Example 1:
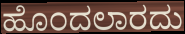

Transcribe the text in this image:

ಹೊಂದಲಾರದು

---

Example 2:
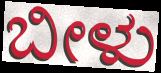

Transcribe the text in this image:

ಬೀಳು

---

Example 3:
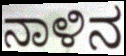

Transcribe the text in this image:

ನಾಳಿನ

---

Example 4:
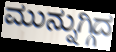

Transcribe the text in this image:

ಮುನ್ನುಗ್ಗಿದ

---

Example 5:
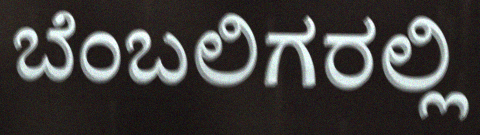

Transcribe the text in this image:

ಬೆಂಬಲಿಗರಲ್ಲಿ